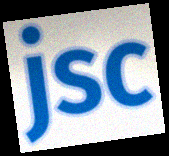
jsc